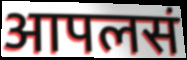
आपलसं